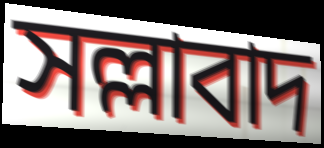
সল্লাবাদ